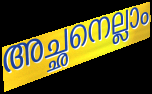
അച്ഛനെല്ലാം